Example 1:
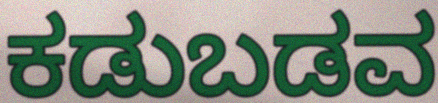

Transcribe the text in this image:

ಕಡುಬಡವ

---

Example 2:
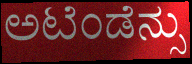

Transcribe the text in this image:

ಅಟೆಂಡೆನ್ಸು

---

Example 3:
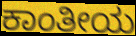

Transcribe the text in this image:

ಕಾಂತೀಯ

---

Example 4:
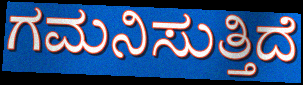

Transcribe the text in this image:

ಗಮನಿಸುತ್ತಿದೆ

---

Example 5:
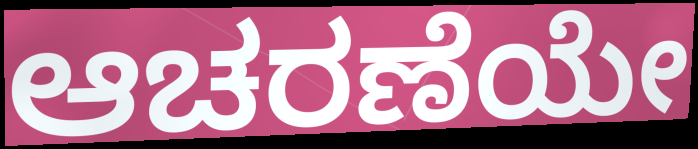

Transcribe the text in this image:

ಆಚರಣೆಯೇ